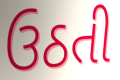
ઉઠતી